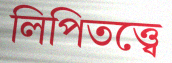
লিপিতত্ত্বে